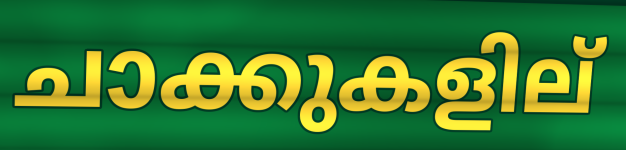
ചാക്കുകളില്